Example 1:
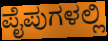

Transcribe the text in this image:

ಪೈಪುಗಳಲ್ಲಿ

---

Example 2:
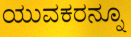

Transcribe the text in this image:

ಯುವಕರನ್ನೂ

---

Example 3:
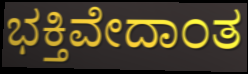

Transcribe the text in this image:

ಭಕ್ತಿವೇದಾಂತ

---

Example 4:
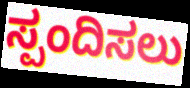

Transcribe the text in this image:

ಸ್ಪಂದಿಸಲು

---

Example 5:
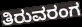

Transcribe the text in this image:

ತಿರುವರಂಗ